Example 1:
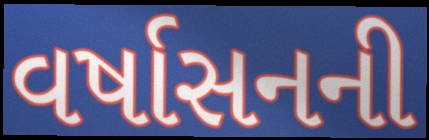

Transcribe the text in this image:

વર્ષાસનની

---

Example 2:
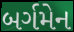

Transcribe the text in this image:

બર્ગમેન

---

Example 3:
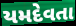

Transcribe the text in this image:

યમદેવતા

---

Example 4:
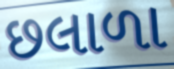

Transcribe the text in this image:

છલાળા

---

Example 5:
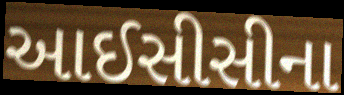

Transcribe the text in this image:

આઈસીસીના